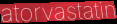
atorvastatin